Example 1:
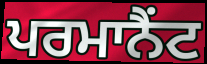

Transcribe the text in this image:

ਪਰਮਾਨੈਂਟ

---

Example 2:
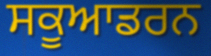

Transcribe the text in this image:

ਸਕੂਆਡਰਨ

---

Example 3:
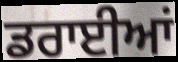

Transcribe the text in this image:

ਡਰਾਈਆਂ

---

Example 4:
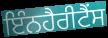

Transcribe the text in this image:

ਇੰਨਹੈਰੀਟੈੰਸ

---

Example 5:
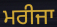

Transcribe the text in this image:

ਮਰੀਜਾ